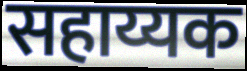
सहाय्यक